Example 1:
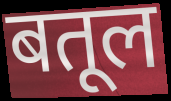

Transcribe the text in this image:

बतूल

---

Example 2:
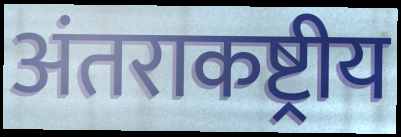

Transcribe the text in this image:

अंतराकष्ट्रीय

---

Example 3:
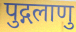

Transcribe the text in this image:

पुद्गलाणु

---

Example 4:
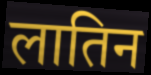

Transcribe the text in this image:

लातिन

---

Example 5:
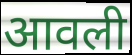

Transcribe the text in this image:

आवली